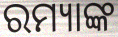
ରମ୍ୟାଙ୍କ